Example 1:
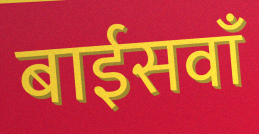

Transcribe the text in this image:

बाईसवाँ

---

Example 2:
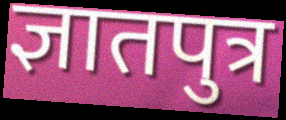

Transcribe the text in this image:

ज्ञातपुत्र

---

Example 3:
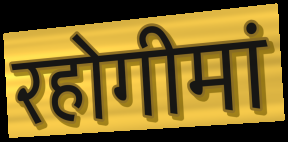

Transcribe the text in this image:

रहोगीमां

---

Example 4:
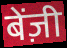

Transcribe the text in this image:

बेंज़ी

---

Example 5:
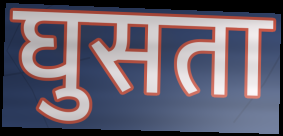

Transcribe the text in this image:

घुसता